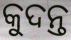
କୁଦନ୍ତ